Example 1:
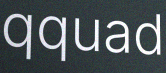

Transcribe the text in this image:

qquad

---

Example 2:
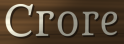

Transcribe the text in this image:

Crore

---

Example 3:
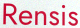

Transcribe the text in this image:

Rensis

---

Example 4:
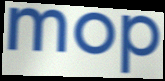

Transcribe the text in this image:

mop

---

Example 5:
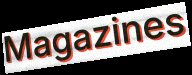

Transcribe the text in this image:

Magazines